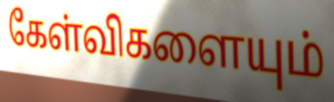
கேள்விகளையும்